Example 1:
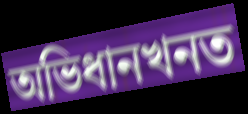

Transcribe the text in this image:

অভিধানখনত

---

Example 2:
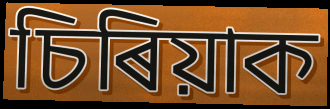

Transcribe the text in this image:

চিৰিয়াক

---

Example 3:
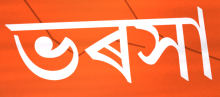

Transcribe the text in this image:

ভৰসা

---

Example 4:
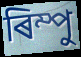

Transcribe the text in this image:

ৰিম্পু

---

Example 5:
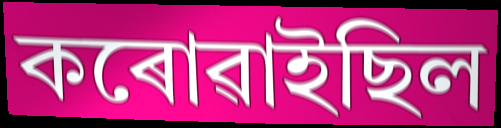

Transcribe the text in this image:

কৰোৱাইছিল